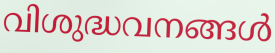
വിശുദ്ധവനങ്ങൾ